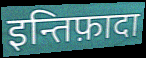
इन्तिफ़ादा